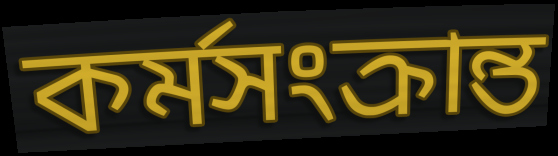
কর্মসংক্রান্ত